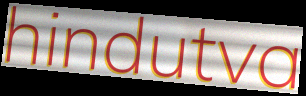
hindutva